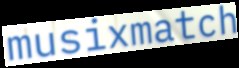
musixmatch